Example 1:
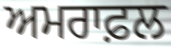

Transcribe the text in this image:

ਅਮਰਾਫ਼ਲ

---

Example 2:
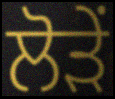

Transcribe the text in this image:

ਲੋੜੇਂ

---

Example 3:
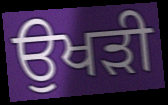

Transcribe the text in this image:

ਉਖੜੀ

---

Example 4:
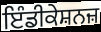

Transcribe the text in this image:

ਇੰਡੀਕੇਸ਼ਨਜ਼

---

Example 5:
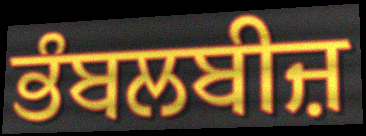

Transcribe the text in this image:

ਭੰਬਲਬੀਜ਼